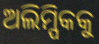
ଅଲିମ୍ପିକକୁ